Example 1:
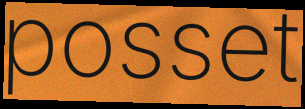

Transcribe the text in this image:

posset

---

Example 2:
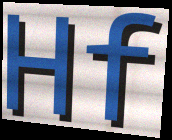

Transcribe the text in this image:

Hf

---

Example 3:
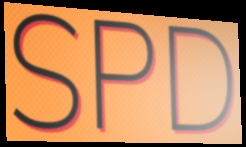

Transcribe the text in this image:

SPD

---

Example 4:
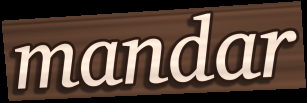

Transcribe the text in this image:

mandar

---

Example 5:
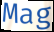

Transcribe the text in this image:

Mag